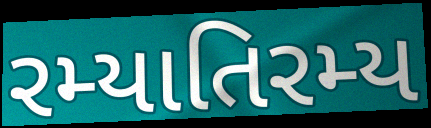
રમ્યાતિરમ્ય